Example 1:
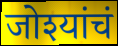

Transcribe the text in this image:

जोश्यांचं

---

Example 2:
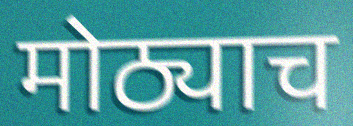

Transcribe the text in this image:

मोठ्याच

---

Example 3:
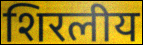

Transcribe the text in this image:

शिरलीय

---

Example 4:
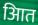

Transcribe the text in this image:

आित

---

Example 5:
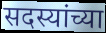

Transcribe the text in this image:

सदस्यांच्या